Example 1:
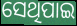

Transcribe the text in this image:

ସେଥିପାଇ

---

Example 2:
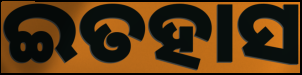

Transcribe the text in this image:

ଇତହାସ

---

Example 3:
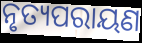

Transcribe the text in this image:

ନୃତ୍ୟପରାୟଣ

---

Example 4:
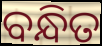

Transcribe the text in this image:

ବନ୍ଧିତ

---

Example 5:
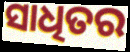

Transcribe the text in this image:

ସାଧିତର